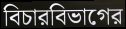
বিচারবিভাগের